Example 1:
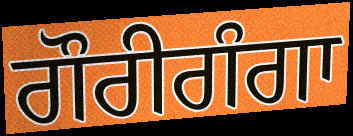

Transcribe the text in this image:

ਗੌਰੀਗੰਗਾ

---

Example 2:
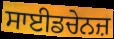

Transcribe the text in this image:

ਸਾਈਡਚੇਨਜ਼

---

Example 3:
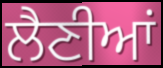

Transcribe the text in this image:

ਲੈਣੀਆਂ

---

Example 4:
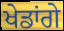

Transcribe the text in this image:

ਖੇਡਾਂਗੇ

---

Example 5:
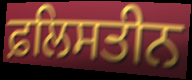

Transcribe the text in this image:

ਫ਼ਲਿਸਤੀਨ